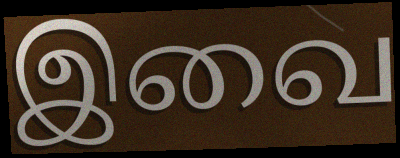
இவை